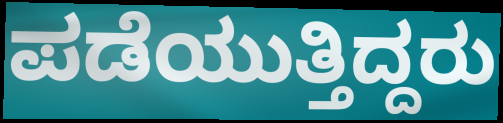
ಪಡೆಯುತ್ತಿದ್ದರು